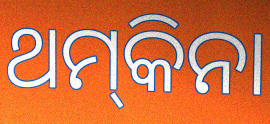
ଥମ୍‍କିନା